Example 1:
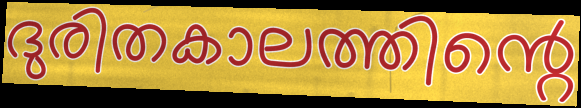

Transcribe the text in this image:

ദുരിതകാലത്തിന്റെ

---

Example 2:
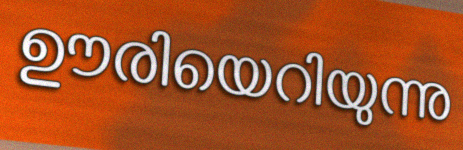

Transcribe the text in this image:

ഊരിയെറിയുന്നു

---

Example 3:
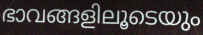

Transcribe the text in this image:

ഭാവങ്ങളിലൂടെയും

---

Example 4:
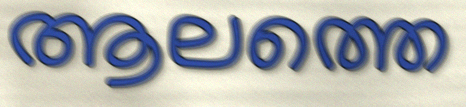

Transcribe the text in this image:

ആലത്തെ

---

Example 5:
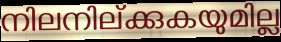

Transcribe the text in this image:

നിലനില്ക്കുകയുമില്ല